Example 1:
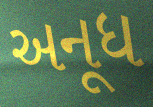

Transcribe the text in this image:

અનૂધ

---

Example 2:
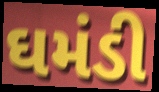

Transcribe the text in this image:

ઘમંડી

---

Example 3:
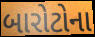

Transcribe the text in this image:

બારોટોના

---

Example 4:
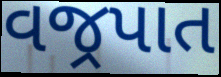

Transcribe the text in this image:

વજ્રપાત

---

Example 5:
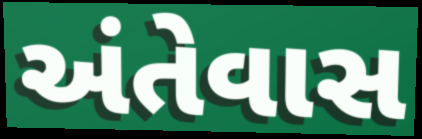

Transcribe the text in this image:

અંતેવાસ